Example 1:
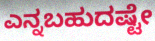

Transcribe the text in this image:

ಎನ್ನಬಹುದಷ್ಟೇ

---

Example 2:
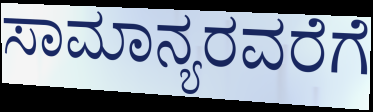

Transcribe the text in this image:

ಸಾಮಾನ್ಯರವರೆಗೆ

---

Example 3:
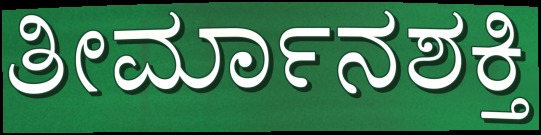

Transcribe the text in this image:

ತೀರ್ಮಾನಶಕ್ತಿ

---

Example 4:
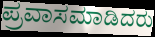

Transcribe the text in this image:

ಪ್ರವಾಸಮಾಡಿದರು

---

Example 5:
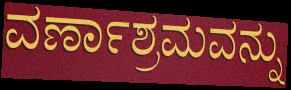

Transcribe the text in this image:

ವರ್ಣಾಶ್ರಮವನ್ನು